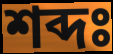
শব্দঃ